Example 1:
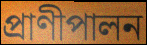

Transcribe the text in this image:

প্রাণীপালন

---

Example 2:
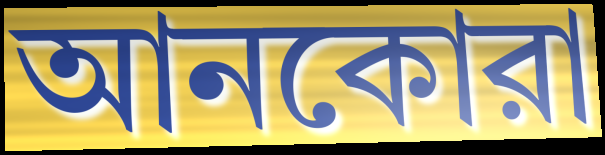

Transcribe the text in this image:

আনকোরা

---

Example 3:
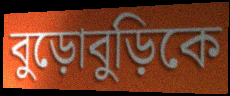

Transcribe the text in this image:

বুড়োবুড়িকে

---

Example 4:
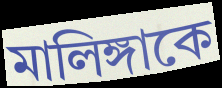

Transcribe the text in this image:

মালিঙ্গাকে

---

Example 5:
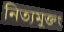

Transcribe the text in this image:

নিত্যমুক্তং